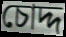
চোদ্দ